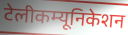
टेलीकम्यूनिकेशन